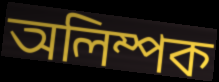
অলিম্পক